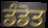
ਡੰਡੋਤ